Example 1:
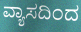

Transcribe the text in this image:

ವ್ಯಾಸದಿಂದ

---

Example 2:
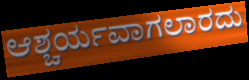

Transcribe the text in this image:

ಆಶ್ಚರ್ಯವಾಗಲಾರದು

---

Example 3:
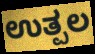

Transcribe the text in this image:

ಉತ್ಪಲ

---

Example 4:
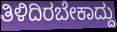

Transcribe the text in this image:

ತಿಳಿದಿರಬೇಕಾದ್ದು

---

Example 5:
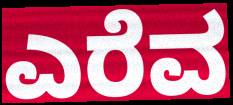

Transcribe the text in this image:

ಎರೆವ